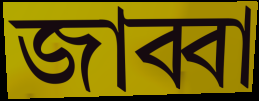
জাব্বা